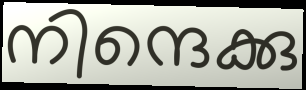
നിന്ദെക്കു